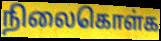
நிலைகொள்க